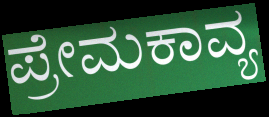
ಪ್ರೇಮಕಾವ್ಯ